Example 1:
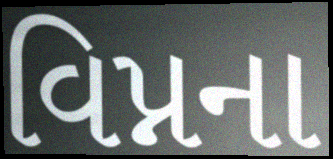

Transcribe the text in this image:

વિપ્નના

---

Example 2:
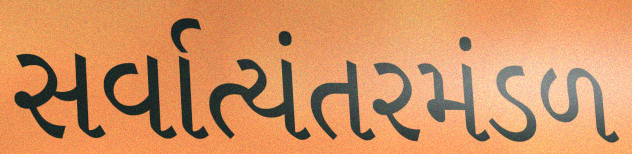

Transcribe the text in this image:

સર્વાત્યંતરમંડળ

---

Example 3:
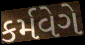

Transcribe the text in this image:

કર્મવેગે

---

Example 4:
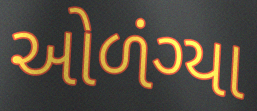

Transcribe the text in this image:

ઓળંગ્યા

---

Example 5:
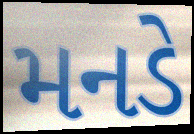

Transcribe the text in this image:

મનડે